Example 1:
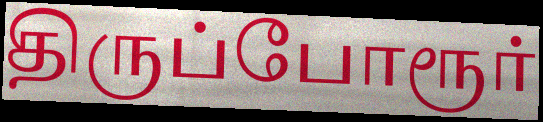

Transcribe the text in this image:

திருப்போரூர்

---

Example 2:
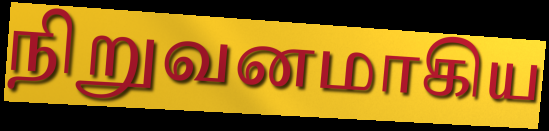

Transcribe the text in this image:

நிறுவனமாகிய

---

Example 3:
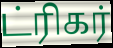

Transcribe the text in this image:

ட்ரிகர்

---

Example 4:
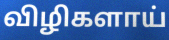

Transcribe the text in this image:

விழிகளாய்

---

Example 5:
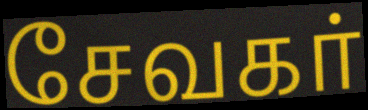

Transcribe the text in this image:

சேவகர்